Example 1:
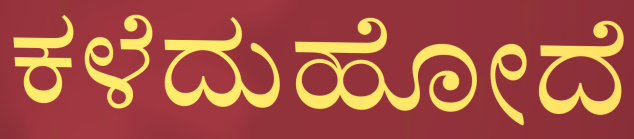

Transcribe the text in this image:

ಕಳೆದುಹೋದೆ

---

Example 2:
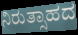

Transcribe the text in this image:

ನಿರುತ್ಸಾಹದ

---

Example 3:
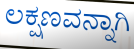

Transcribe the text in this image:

ಲಕ್ಷಣವನ್ನಾಗಿ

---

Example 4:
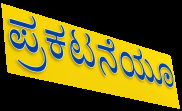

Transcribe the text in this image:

ಪ್ರಕಟನೆಯೂ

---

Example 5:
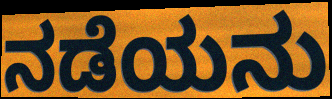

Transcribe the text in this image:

ನಡೆಯನು